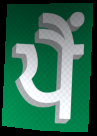
ਪੈਂ